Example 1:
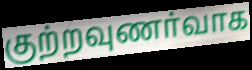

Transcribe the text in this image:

குற்றவுணர்வாக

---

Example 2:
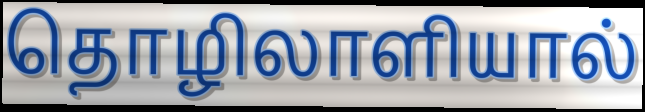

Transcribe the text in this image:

தொழிலாளியால்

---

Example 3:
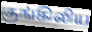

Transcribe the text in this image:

குங்கிலிய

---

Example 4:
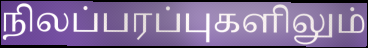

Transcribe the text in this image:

நிலப்பரப்புகளிலும்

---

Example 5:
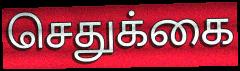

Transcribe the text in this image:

செதுக்கை